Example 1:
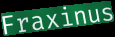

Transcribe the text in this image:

Fraxinus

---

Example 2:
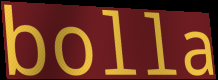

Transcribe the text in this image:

bolla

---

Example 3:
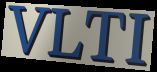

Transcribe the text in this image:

VLTI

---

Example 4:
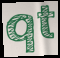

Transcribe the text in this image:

qt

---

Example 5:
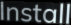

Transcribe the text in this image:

Install